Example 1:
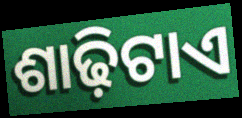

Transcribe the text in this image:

ଶାଢ଼ିଟାଏ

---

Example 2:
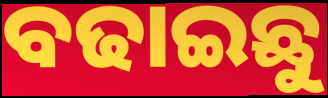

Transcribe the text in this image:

ବଢାଇଛୁ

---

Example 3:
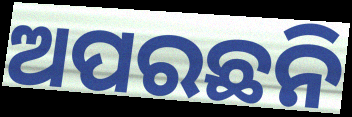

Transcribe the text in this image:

ଅପରଛନି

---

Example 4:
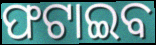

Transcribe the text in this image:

ଫଟାଇବ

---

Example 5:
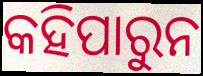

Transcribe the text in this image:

କହିପାରୁନ